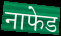
नाफेड